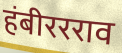
हंबीररराव